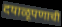
दयाळूपणाची